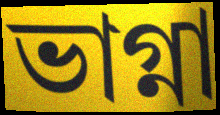
ভাগ্না